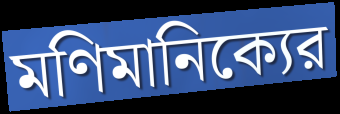
মণিমানিক্যের